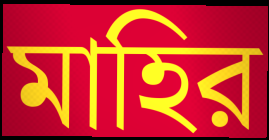
মাহির